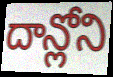
దాన్లోని